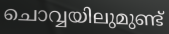
ചൊവ്വയിലുമുണ്ട്